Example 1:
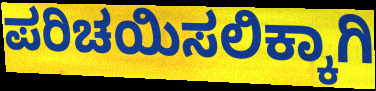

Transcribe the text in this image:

ಪರಿಚಯಿಸಲಿಕ್ಕಾಗಿ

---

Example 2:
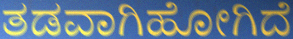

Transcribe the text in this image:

ತಡವಾಗಿಹೋಗಿದೆ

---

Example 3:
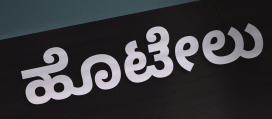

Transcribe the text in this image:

ಹೊಟೇಲು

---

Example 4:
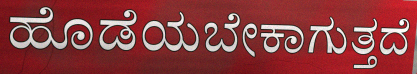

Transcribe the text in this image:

ಹೊಡೆಯಬೇಕಾಗುತ್ತದೆ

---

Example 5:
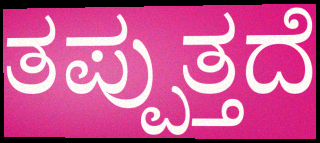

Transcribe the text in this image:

ತಪ್ಪುತ್ತದೆ